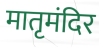
मातृमंदिर